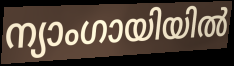
ന്യാംഗായിയിൽ